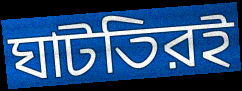
ঘাটতিরই